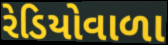
રેડિયોવાળા